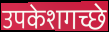
उपकेशगच्छे